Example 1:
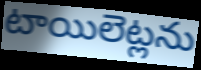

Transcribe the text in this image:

టాయిలెట్లను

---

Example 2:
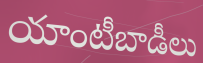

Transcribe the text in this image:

యాంటీబాడీలు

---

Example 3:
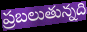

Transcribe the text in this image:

ప్రబలుతున్నది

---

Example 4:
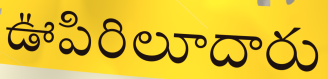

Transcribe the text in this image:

ఊపిరిలూదారు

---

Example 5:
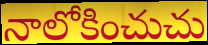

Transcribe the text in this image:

నాలోకించుచు